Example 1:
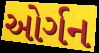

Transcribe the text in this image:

ઓર્ગન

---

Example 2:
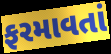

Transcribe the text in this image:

ફરમાવતાં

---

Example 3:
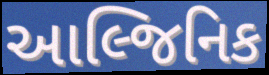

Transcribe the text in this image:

આલ્જિનિક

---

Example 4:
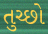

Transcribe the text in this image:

તુચ્છો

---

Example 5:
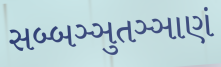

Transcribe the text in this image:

સબ્બઞ્ઞુતઞ્ઞાણં